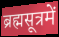
ब्रह्मसूत्रमें